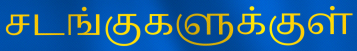
சடங்குகளுக்குள்